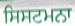
ਸਿਸਟਮਨਾ